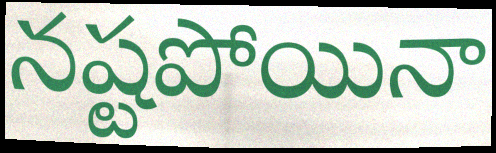
నష్టపోయినా